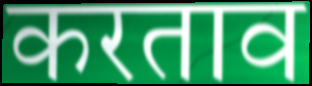
करताव